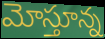
మోస్తూన్న